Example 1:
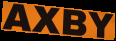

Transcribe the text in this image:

AXBY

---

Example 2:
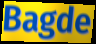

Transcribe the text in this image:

Bagde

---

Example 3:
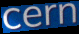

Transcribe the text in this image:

cern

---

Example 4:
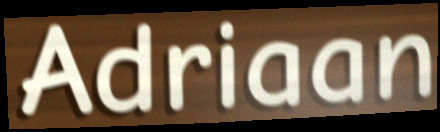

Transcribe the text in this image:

Adriaan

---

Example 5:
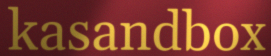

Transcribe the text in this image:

kasandbox